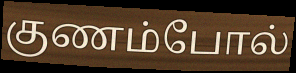
குணம்போல்